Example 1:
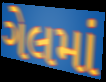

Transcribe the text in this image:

ગેલમાં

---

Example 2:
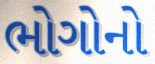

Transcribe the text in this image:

ભોગોનો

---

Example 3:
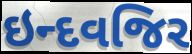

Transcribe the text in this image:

ઇન્દવજિર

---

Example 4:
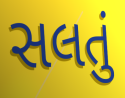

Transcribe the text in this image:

સલતું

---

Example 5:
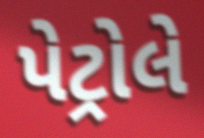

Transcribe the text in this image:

પેટ્રોલે